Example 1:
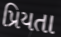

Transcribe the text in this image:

પ્રિયતા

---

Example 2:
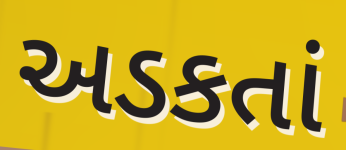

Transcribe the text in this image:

અડકતાં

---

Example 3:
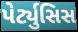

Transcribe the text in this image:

પેર્ટ્યુસિસ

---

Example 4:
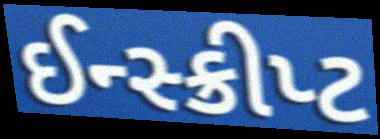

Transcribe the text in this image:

ઈન્સ્ક્રીપ્ટ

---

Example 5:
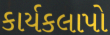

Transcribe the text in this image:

કાર્યકલાપો